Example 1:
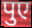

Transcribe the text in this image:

पुए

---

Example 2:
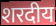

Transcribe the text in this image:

शरदीय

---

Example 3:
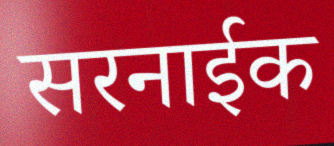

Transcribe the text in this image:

सरनाईक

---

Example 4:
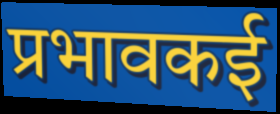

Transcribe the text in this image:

प्रभावकई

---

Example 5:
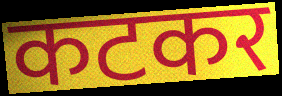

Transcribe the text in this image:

कटकर